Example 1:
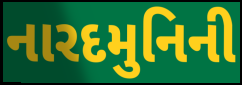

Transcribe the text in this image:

નારદમુનિની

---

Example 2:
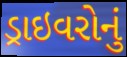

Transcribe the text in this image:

ડ્રાઇવરોનું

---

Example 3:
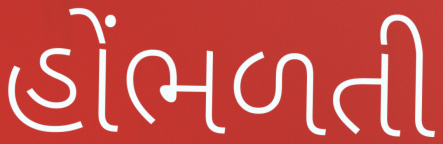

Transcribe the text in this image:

હોંભળતી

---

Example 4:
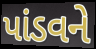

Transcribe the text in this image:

પાંડવને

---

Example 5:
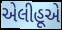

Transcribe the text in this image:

એલીહૂએ